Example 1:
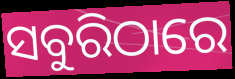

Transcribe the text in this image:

ସବୁରିଠାରେ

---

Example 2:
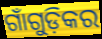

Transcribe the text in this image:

ଗାଁଗୁଡ଼ିକର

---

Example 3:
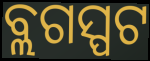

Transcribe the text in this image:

ବ୍ଲଗସ୍ପଟ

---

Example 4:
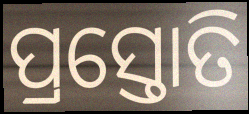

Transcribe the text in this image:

ପ୍ରସ୍ତୋତି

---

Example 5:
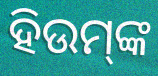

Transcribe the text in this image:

ହିଉମ୍‌ଙ୍କ